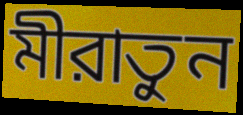
মীরাতুন